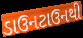
ડાઉનટાઉનથી